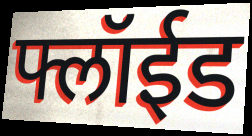
फ्लॉईड